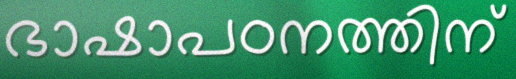
ഭാഷാപഠനത്തിന്